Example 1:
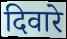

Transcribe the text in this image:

दिवारे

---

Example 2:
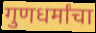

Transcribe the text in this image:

गुणधर्मांचा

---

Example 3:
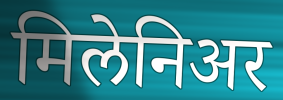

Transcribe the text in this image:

मिलेनिअर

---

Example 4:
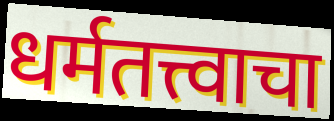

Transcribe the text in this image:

धर्मतत्त्वाचा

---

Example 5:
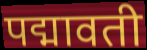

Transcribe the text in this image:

पद्मावती